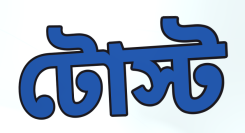
টোস্ট